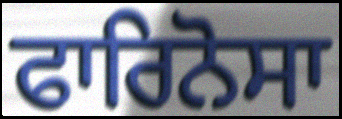
ਫਾਰਿਨੋਸਾ